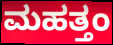
ಮಹತ್ತಂ